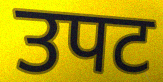
उपट